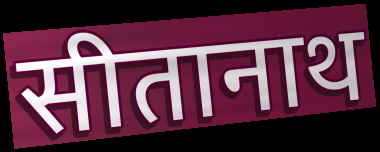
सीतानाथ